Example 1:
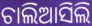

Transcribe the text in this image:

ଚାଲିଆସିଲି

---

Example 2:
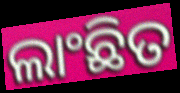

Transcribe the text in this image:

ଲାଂଛିତ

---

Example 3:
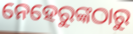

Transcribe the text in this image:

ନେହେରୁଙ୍କଠାରୁ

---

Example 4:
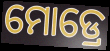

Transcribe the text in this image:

ମୋଡ୍ରେ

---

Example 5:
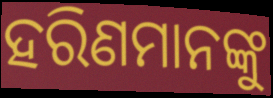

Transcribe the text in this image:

ହରିଣମାନଙ୍କୁ